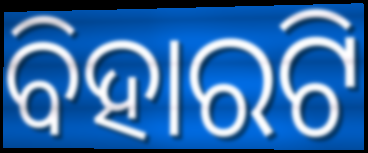
ବିହାରଟି